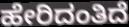
ಹೇರಿದಂತಿದೆ